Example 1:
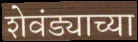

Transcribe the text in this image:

शेवंड्याच्या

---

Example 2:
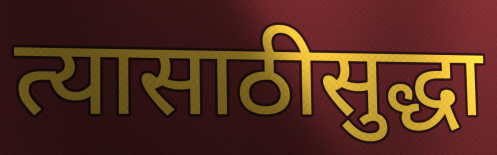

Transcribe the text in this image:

त्यासाठीसुद्धा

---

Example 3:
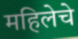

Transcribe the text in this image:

महिलेचे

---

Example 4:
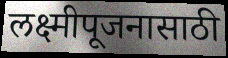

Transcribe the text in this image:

लक्ष्मीपूजनासाठी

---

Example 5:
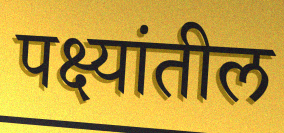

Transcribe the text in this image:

पक्ष्यांतील